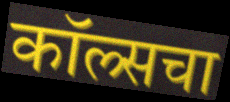
कॉल्सचा